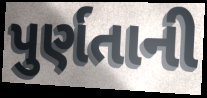
પુર્ણતાની